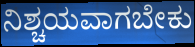
ನಿಶ್ಚಯವಾಗಬೇಕು